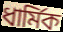
ধাৰ্মিক